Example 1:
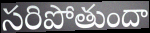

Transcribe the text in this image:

సరిపోతుందా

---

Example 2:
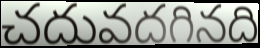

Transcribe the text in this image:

చదువదగినది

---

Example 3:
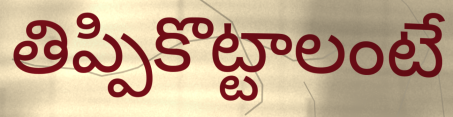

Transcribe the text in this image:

తిప్పికొట్టాలంటే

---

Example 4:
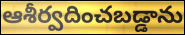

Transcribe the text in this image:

ఆశీర్వదించబడ్డాను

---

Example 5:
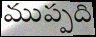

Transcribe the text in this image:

ముప్పది